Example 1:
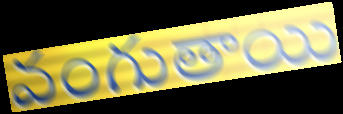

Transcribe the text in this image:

వంగుతాయి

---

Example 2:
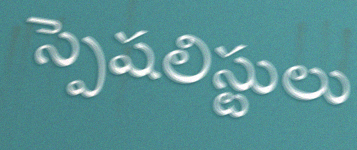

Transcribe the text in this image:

స్పెషలిస్టులు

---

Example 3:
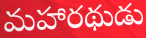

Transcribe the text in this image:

మహారథుడు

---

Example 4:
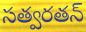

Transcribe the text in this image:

సత్వరతన్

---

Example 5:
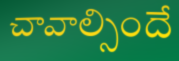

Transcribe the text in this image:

చావాల్సిందే